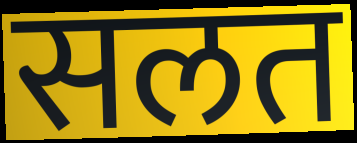
सलत